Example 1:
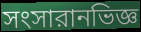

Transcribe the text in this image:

সংসারানভিজ্ঞ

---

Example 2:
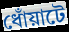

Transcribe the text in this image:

ধোঁয়াটে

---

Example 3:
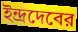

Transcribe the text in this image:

ইন্দ্রদেবের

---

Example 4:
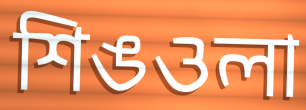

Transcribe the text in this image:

শিঙওলা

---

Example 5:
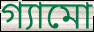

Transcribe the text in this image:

গ্যামো